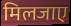
मिलजाए